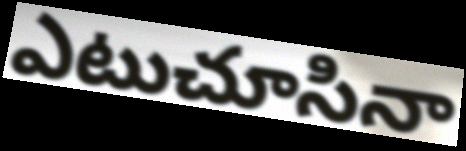
ఎటుచూసినా